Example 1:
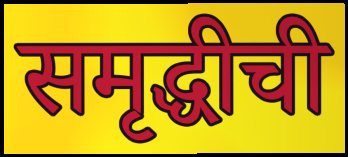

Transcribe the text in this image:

समृद्धीची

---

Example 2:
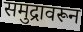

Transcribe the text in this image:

समुद्रावरून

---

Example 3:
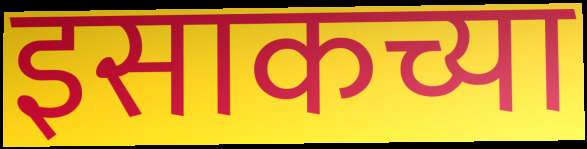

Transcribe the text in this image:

इसाकच्या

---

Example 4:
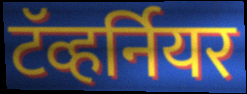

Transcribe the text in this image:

टॅव्हर्नियर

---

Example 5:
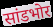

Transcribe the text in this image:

सांडभोर